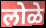
लोळे